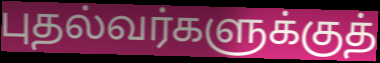
புதல்வர்களுக்குத்